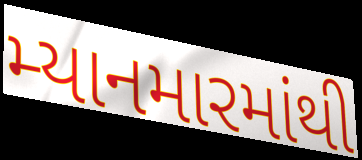
મ્યાનમારમાંથી